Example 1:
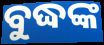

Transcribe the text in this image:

ବୁଦ୍ଧଙ୍କ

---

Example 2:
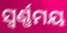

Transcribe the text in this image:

ସ୍ୱର୍ଣ୍ଣମୟ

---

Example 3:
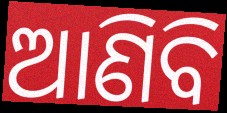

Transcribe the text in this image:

ଆଣିବି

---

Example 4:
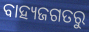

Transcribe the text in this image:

ବାହ୍ୟଜଗତରୁ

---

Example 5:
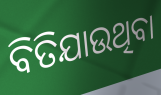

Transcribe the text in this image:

ବିତିଯାଉଥିବା